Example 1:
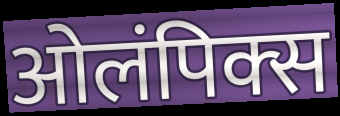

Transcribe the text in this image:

ओलंपिक्‍स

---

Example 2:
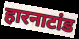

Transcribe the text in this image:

हारनाटांड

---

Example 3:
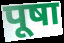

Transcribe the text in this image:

पूषा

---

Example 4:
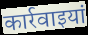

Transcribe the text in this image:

कार्रवाइयां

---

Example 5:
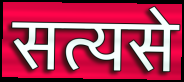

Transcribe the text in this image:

सत्यसे